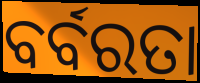
ବର୍ବରତା